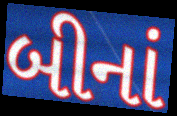
બીનાં